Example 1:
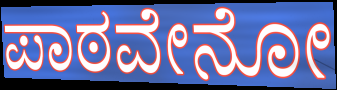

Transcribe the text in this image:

ಪಾಠವೇನೋ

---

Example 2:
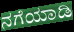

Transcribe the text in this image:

ನಗೆಯಾಡಿ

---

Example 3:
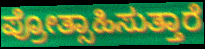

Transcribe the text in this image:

ಪ್ರೋತ್ಸಾಹಿಸುತ್ತಾರೆ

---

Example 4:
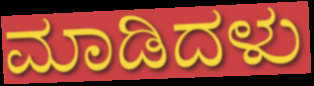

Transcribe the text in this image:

ಮಾಡಿದಳು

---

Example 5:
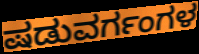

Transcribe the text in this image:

ಷಡುವರ್ಗಂಗಳ